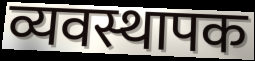
व्यवस्थापक